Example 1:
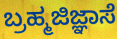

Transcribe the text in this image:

ಬ್ರಹ್ಮಜಿಜ್ಞಾಸೆ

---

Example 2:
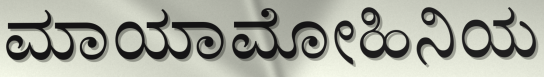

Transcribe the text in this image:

ಮಾಯಾಮೋಹಿನಿಯ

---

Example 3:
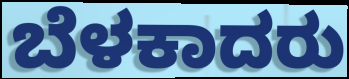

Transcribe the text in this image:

ಬೆಳಕಾದರು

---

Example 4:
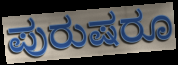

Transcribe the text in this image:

ಪುರುಷರೂ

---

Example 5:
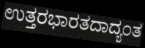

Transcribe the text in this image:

ಉತ್ತರಭಾರತದಾದ್ಯಂತ